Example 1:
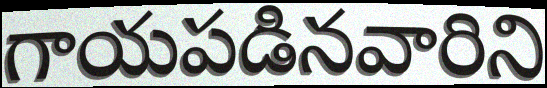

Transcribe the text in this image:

గాయపడినవారిని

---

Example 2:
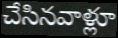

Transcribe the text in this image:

చేసినవాళ్లూ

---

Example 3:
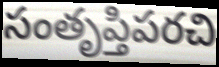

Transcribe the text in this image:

సంతృప్తిపరచి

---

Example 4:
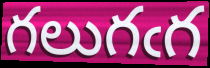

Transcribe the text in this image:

గలుగఁగ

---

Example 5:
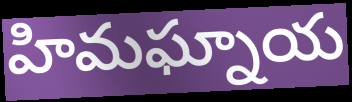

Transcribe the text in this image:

హిమఘ్నాయ